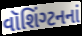
વૉશિંગ્ટનનાં